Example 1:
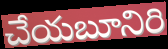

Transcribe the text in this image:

చేయబూనిరి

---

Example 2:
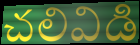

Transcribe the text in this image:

చలివిడి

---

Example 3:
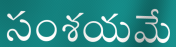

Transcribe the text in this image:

సంశయమే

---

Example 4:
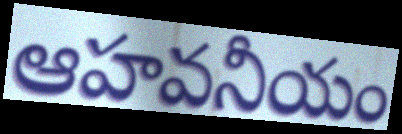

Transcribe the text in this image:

ఆహవనీయం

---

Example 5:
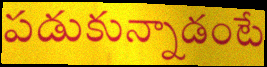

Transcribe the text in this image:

పడుకున్నాడంటే